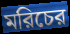
মরিচের